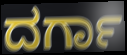
ದರ್ಗಾ